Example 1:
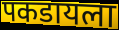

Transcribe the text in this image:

पकडायला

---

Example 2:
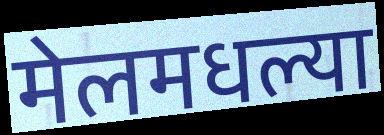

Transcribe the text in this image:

मेलमधल्या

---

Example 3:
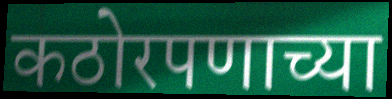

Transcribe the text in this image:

कठोरपणाच्या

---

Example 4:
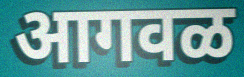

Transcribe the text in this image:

आगवळ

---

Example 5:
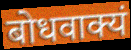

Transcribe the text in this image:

बोधवाक्यं